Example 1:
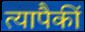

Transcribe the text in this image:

त्यापैकीं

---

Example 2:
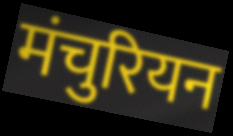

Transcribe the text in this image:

मंचुरियन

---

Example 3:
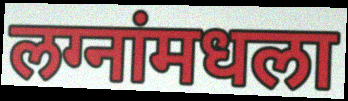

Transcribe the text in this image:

लग्नांमधला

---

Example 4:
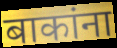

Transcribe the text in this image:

बाकांना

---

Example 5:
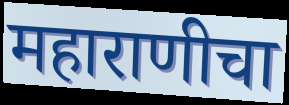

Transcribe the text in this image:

महाराणीचा